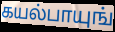
கயல்பாயுங்